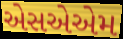
એસએએમ